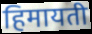
हिमायती